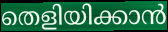
തെളിയിക്കാൻ